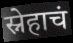
स्नेहाचं